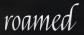
roamed